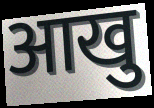
आखु